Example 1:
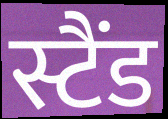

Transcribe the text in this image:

स्टैंड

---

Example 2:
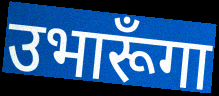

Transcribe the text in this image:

उभारूँगा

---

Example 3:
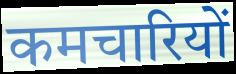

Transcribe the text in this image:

कमचारियों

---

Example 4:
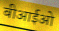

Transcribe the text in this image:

बीआईओ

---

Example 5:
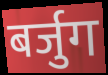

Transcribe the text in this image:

बर्जुग